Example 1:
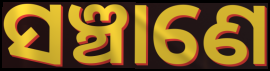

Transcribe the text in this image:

ସଞ୍ଚାଣେ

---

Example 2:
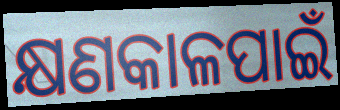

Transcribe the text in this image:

କ୍ଷଣକାଳପାଇଁ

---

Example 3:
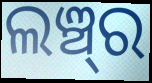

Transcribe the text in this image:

ଲଞ୍ଚ୍‍ର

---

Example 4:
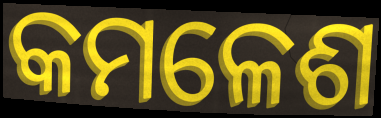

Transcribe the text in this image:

କମଳେଶ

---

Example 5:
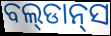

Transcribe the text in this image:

ବଲ୍‌ଡାନ୍‌ସ